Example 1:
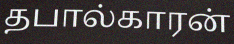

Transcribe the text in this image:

தபால்காரன்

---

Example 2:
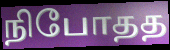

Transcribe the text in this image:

நிபோதத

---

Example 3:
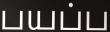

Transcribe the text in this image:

பயப்ப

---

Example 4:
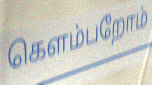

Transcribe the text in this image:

கெளம்பறோம்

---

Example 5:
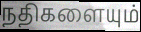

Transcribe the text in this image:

நதிகளையும்